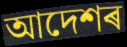
আদেশৰ